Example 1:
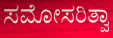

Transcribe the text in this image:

ಸಮೋಸರಿತ್ವಾ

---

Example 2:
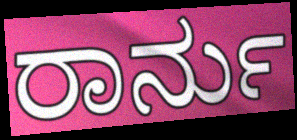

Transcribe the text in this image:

ರಾರ್ನು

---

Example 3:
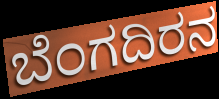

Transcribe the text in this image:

ಬೆಂಗದಿರನ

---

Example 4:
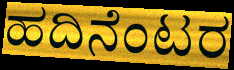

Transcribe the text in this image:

ಹದಿನೆಂಟರ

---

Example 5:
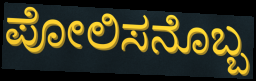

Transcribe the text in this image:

ಪೋಲಿಸನೊಬ್ಬ